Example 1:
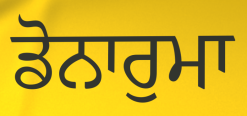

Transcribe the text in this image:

ਡੋਨਾਰੁਮਾ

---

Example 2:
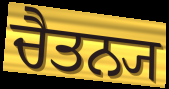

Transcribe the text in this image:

ਚੈਤਨ੍ਯ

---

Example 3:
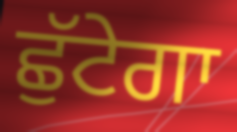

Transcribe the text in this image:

ਛੁੱਟੇਗਾ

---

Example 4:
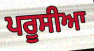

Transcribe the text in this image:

ਪਰੂਸੀਆ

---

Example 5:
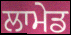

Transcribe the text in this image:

ਲਾਮੇਡ